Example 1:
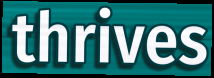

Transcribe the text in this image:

thrives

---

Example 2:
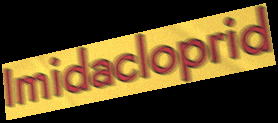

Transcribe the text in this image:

Imidacloprid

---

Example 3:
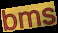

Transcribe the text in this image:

bms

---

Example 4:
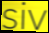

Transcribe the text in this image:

siv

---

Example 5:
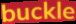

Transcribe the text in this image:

buckle